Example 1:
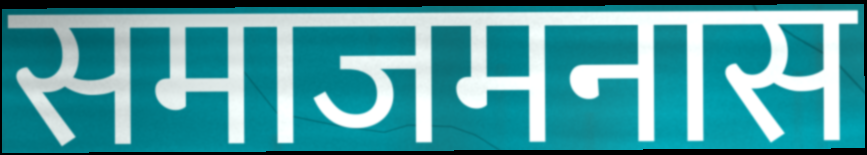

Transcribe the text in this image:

समाजमनास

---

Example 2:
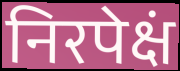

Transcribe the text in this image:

निरपेक्षं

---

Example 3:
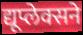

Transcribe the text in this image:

द्यूप्लेक्सने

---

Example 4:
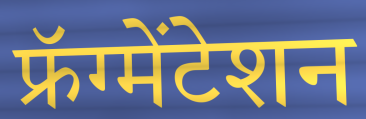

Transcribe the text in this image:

फ्रॅग्मेंटेशन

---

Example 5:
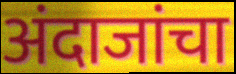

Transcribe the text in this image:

अंदाजांचा